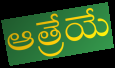
ఆత్రేయే